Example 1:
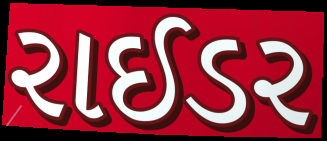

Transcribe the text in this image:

રાઈડર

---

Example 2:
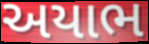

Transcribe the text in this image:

અયાભ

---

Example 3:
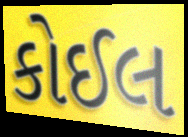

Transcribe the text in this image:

કોઈલ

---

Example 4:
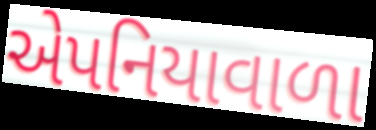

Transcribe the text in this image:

એપનિયાવાળા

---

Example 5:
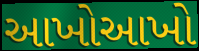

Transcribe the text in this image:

આખોઆખો